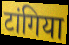
टांगिया